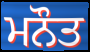
ਮਨੌਤ